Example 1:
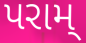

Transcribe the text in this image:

પરામ્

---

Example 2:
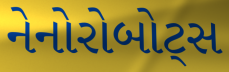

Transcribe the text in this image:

નેનોરોબોટ્સ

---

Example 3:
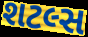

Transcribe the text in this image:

શટલ્સ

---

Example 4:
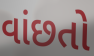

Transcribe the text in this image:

વાંછતો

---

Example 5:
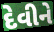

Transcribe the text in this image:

દેવીને